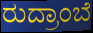
ರುದ್ರಾಂಬೆ